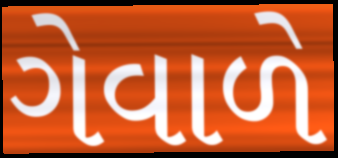
ગેવાળે